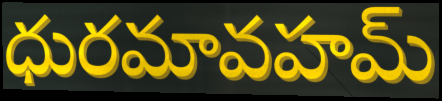
ధురమావహమ్